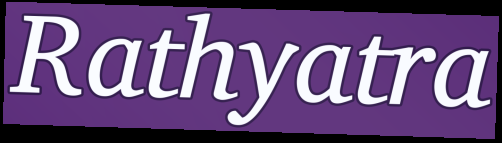
Rathyatra